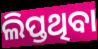
ଲିପ୍ତଥିବା